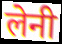
लेनी